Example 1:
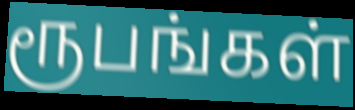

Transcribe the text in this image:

ரூபங்கள்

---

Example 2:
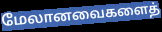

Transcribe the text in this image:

மேலானவைகளைத்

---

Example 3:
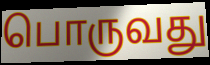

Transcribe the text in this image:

பொருவது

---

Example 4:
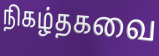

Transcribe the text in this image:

நிகழ்தகவை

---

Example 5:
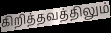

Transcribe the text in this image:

கிறித்தவத்திலும்